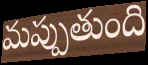
మప్పుతుంది